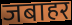
जबाहर